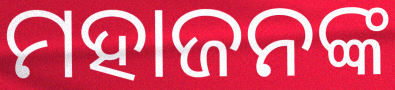
ମହାଜନଙ୍କ